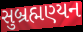
સુબ્રહ્મણ્યન